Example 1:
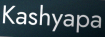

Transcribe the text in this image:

Kashyapa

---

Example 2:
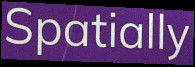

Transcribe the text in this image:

Spatially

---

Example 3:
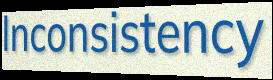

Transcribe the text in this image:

Inconsistency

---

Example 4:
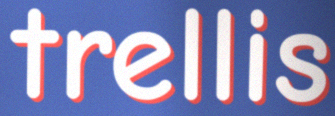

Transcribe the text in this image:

trellis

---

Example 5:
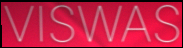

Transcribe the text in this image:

VISWAS